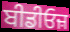
ਬੀਡੀਓਜ਼